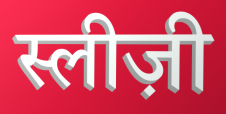
स्लीज़ी